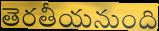
తెరతీయనుంది